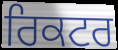
ਰਿਕਟਰ